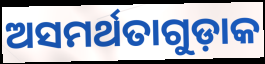
ଅସମର୍ଥତାଗୁଡ଼ାକ